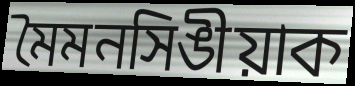
মৈমনসিঙীয়াক